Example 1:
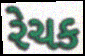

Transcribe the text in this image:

રેચક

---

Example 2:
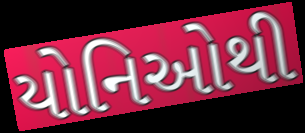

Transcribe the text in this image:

યોનિઓથી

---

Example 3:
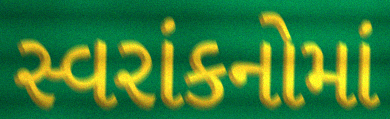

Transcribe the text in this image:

સ્વરાંકનોમાં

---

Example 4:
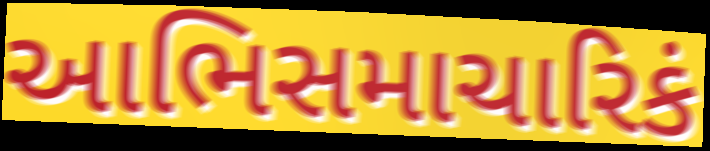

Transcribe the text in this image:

આભિસમાચારિકં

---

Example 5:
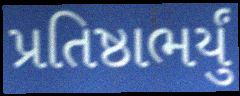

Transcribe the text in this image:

પ્રતિષ્ઠાભર્યું